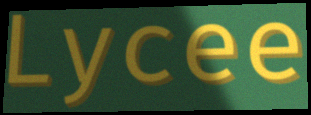
Lycee